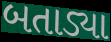
બતાડ્યા